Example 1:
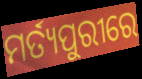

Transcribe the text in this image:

ମର୍ତ୍ୟପୁରୀରେ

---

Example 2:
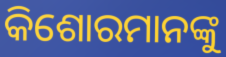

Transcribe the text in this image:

କିଶୋରମାନଙ୍କୁ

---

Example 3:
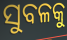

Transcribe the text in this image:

ସୁବଳକୁ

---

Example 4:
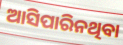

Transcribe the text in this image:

ଆସିପାରିନଥିବା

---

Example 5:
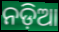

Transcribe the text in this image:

ନଡ଼ିଆ